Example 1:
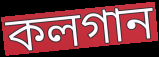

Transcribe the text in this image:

কলগান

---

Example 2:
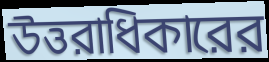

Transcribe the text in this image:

উত্তরাধিকারের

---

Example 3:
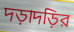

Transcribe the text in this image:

দড়াদড়ির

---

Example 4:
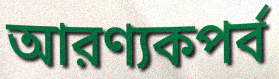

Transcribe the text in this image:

আরণ্যকপর্ব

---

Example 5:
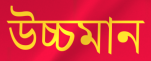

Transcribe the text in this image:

উচ্চমান